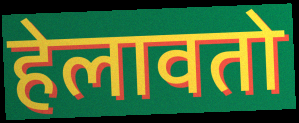
हेलावतो